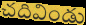
చదివిండు